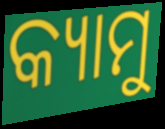
କ୍ୟାମୁ